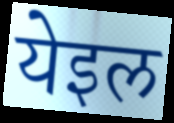
येइल